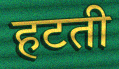
हटती